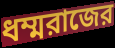
ধম্মরাজের